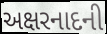
અક્ષરનાદની